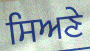
ਸਿਅਣੇ